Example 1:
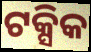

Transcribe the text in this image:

ଟକ୍ସିକ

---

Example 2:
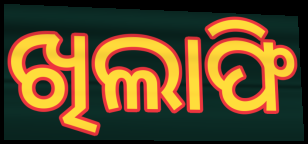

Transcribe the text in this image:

ଖିଲାଫି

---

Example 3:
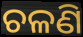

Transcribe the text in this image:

ଚଳଣି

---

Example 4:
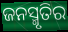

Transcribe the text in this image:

ଜନସ୍ମୃତିର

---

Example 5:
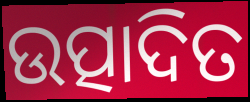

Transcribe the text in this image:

ଉତ୍ପାଦିତ